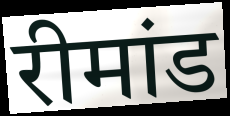
रीमांड